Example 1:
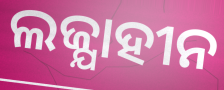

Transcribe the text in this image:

ଲଜ୍ଯାହୀନ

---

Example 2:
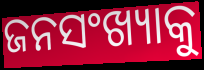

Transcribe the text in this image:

ଜନସଂଖ୍ୟାକୁ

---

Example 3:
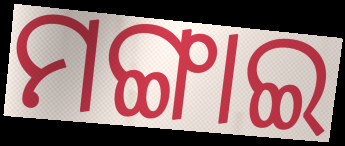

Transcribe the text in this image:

ମଙ୍ଗାଇ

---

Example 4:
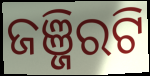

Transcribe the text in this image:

ଜଞ୍ଜିରଟି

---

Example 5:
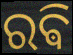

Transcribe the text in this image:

ରଵି